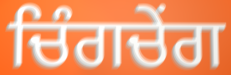
ਚਿੰਗਚੇਂਗ